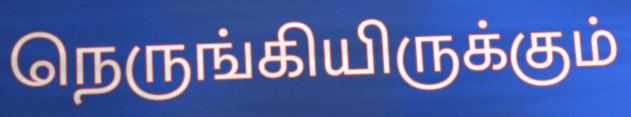
நெருங்கியிருக்கும்